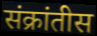
संक्रांतीस